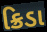
ક્રિડા